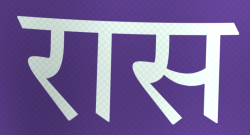
रास